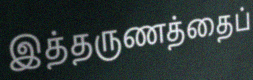
இத்தருணத்தைப்